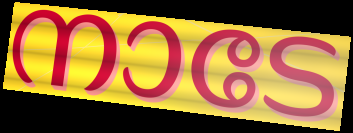
നാടേ